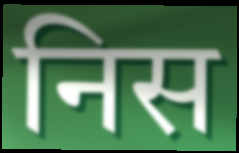
निस